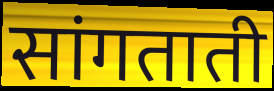
सांगताती